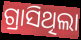
ଗ୍ରାସିଥିଲା